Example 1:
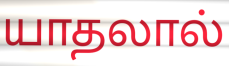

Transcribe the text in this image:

யாதலால்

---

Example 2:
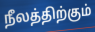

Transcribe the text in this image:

நீலத்திற்கும்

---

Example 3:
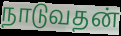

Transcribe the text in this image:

நாடுவதன்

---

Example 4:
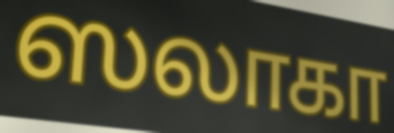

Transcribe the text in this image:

ஸலாகா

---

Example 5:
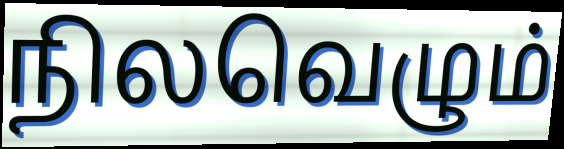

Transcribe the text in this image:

நிலவெழும்